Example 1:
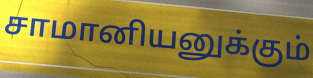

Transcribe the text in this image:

சாமானியனுக்கும்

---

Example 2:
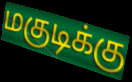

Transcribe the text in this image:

மகுடிக்கு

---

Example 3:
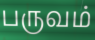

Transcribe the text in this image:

பருவம்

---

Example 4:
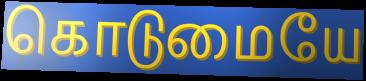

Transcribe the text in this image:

கொடுமையே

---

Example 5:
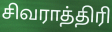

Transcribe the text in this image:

சிவராத்திரி